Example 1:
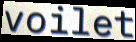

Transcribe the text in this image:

voilet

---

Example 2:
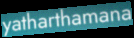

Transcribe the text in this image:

yatharthamana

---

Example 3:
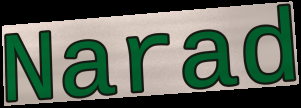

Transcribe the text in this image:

Narad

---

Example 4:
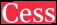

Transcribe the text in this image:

Cess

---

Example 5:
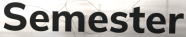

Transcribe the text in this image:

Semester